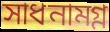
সাধনামগ্ন